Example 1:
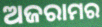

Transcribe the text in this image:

ଅଜରାମର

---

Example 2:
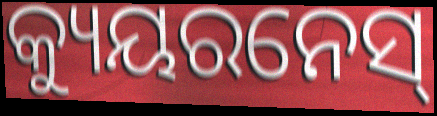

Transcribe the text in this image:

କ୍ୟୁୟରନେସ୍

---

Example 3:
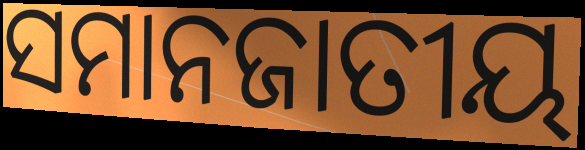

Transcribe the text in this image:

ସମାନଜାତୀୟ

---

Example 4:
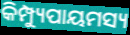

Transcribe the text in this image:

କିମ୍ପ୍ୟୁପାୟମସ୍ୟ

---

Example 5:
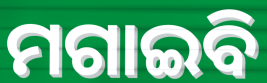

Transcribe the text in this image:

ମଗାଇବି